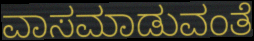
ವಾಸಮಾಡುವಂತೆ